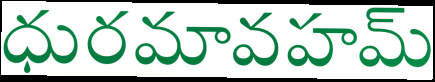
ధురమావహమ్